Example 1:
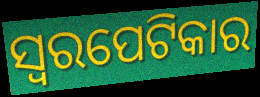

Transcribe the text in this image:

ସ୍ଵରପେଟିକାର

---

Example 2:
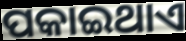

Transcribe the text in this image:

ପକାଇଥାଏ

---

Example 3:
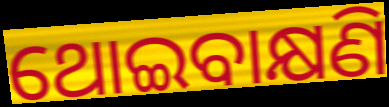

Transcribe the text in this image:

ଥୋଇବାକ୍ଷଣି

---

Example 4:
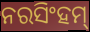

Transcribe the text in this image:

ନରସିଂହମ୍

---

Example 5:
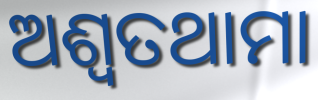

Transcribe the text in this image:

ଅଶ୍ୱତଥାମା